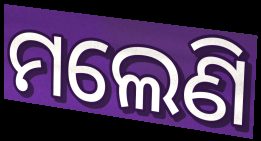
ମଲେଣି